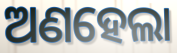
ଅଣହେଲା